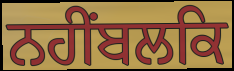
ਨਹੀਂਬਲਕਿ